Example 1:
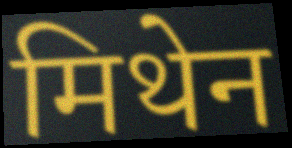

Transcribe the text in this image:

मिथेन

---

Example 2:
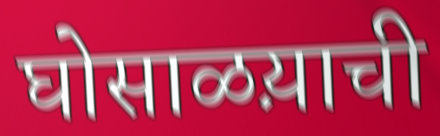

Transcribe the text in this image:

घोसाळय़ाची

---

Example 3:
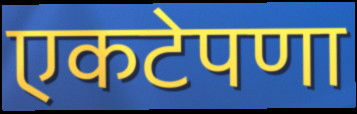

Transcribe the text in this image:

एकटेपणा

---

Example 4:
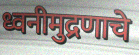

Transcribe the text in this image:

ध्वनीमुद्रणाचे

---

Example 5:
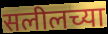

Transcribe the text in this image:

सलीलच्या